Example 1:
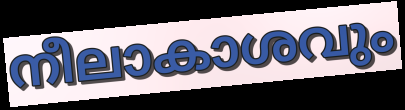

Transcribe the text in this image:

നീലാകാശവും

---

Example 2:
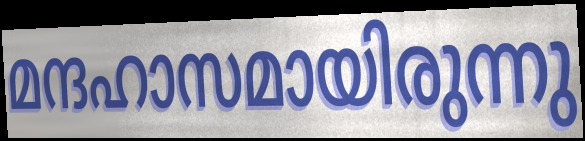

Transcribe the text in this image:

മന്ദഹാസമായിരുന്നു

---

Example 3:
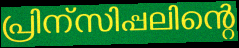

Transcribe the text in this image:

പ്രിന്സിപ്പലിന്റെ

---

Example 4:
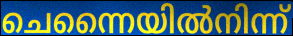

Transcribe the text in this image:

ചെന്നൈയിൽനിന്ന്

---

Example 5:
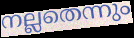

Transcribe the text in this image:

നല്ലതെന്നും